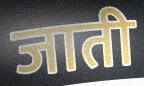
जाती